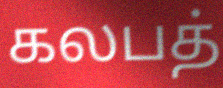
கலபத்